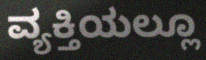
ವ್ಯಕ್ತಿಯಲ್ಲೂ